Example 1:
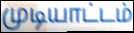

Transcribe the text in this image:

முடியாட்டம்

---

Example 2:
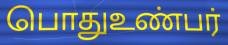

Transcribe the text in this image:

பொதுஉண்பர்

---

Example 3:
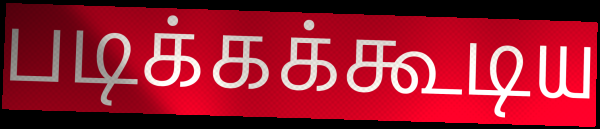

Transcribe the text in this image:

படிக்கக்கூடிய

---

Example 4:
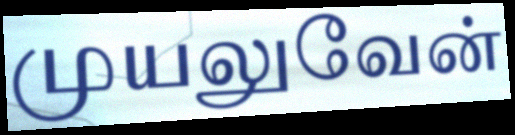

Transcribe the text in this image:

முயலுவேன்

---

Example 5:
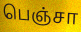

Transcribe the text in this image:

பெஞ்சா